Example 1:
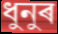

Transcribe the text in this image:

ধুনুৰ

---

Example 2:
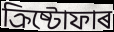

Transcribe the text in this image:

ক্ৰিষ্টোফাৰ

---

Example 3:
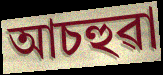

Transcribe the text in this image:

আচহুৱা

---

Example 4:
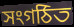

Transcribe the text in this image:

সংগঠিত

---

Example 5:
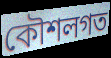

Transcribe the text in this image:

কৌশলগত